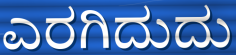
ಎರಗಿದುದು